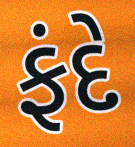
ફંદે